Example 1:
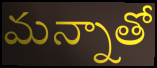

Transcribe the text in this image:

మన్నాతో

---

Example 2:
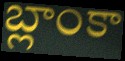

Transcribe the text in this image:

బ్లాంకా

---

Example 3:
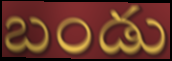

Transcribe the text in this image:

బండు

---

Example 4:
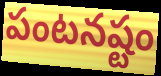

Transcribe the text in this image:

పంటనష్టం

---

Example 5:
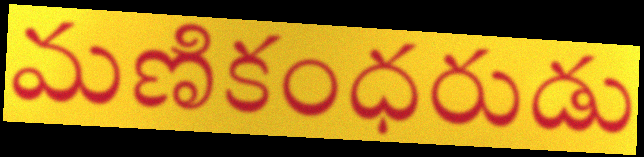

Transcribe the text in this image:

మణికంధరుడు